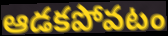
ఆడకపోవటం